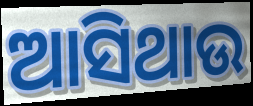
ଆସିଥାଉ